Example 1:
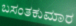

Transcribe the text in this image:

ಬಸಂತಕುಮಾರ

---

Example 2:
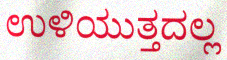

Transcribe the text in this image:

ಉಳಿಯುತ್ತದಲ್ಲ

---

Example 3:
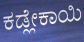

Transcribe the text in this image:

ಕಡ್ಲೇಕಾಯಿ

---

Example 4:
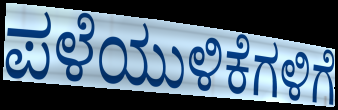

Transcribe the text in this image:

ಪಳೆಯುಳಿಕೆಗಳಿಗೆ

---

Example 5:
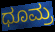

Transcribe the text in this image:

ಧೂಮ್ರ